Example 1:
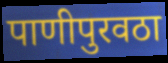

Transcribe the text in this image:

पाणीपुरवठा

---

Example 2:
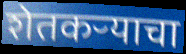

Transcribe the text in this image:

शेतकऱ्याचा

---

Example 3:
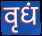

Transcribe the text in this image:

वृधं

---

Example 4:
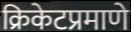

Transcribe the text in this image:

क्रिकेटप्रमाणे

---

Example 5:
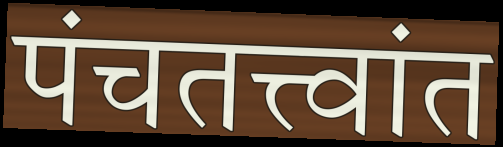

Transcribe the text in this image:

पंचतत्त्वांत